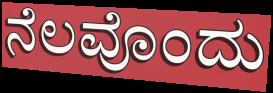
ನೆಲವೊಂದು